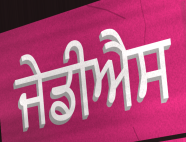
ਜੇਡੀਐਸ